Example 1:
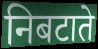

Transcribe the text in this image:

निबटाते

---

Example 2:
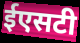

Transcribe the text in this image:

ईएसटी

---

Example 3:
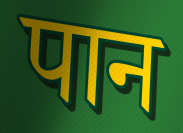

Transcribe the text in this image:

पान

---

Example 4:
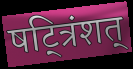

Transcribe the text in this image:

षट्त्रिंशत्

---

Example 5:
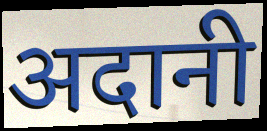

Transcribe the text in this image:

अदानी